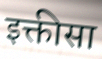
इक्तीसा